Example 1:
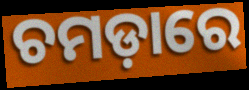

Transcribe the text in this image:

ଚମଡ଼ାରେ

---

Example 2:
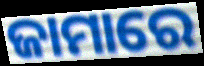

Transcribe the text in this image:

ଜାମାରେ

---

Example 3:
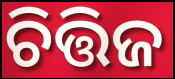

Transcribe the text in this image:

ଚିତ୍ତିଜ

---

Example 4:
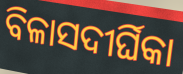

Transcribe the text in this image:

ବିଳାସଦୀର୍ଘିକା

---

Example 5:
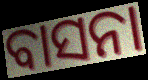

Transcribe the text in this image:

ବାସନା